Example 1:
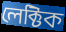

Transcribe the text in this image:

লেক্টিক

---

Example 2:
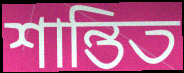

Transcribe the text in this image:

শান্তিত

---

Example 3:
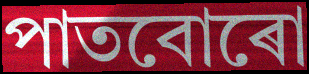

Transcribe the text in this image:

পাতবোৰো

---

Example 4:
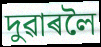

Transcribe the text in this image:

দুৱাৰলৈ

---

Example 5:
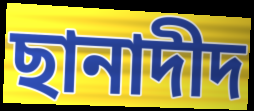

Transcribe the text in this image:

ছানাদীদ